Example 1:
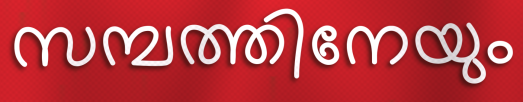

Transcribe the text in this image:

സമ്പത്തിനേയും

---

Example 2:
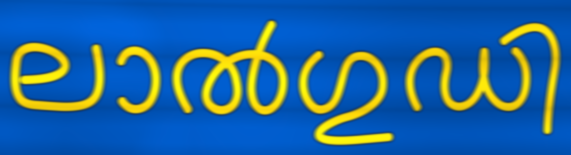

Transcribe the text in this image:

ലാൽഗുഡി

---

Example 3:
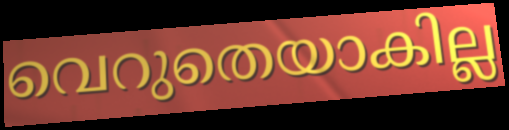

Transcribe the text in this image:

വെറുതെയാകില്ല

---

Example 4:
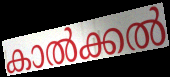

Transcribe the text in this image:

കാൽക്കൽ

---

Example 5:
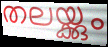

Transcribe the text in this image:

തലയ്ക്കും